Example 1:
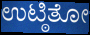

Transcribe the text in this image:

ಉಟ್ಠಿತೋ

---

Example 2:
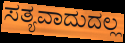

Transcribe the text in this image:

ಸತ್ಯವಾದುದಲ್ಲ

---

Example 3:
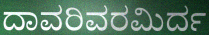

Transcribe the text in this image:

ದಾವರಿವರಮಿರ್ದ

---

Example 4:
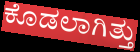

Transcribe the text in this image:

ಕೊಡಲಾಗಿತ್ತು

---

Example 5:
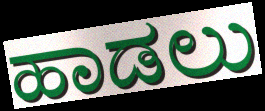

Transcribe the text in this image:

ಹಾಡಲು